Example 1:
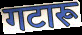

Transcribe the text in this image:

गटारू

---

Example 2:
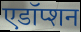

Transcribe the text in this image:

एडॉप्शन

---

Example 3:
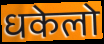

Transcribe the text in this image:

धकेलो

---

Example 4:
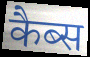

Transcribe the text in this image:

कैब्स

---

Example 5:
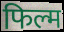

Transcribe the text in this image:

फिल्‍म